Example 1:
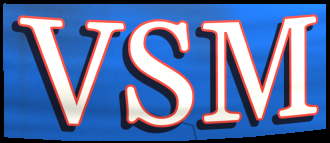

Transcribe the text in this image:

VSM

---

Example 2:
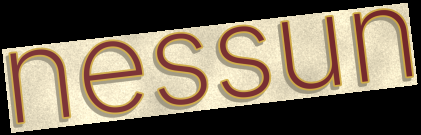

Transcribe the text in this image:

nessun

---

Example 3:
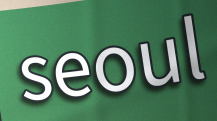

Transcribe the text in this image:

seoul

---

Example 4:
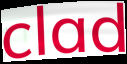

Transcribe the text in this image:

clad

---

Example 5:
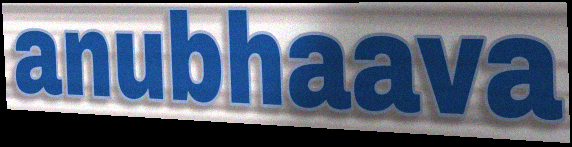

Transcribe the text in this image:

anubhaava